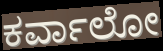
ಕರ್ವಾಲೋ